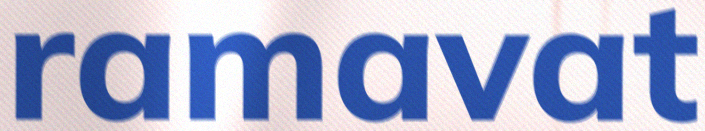
ramavat